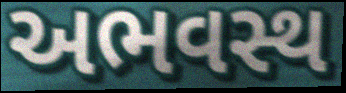
અભવસ્થ